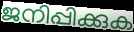
ജനിപ്പിക്കുക